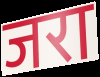
जरा